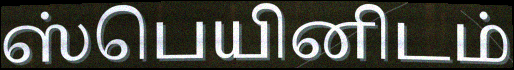
ஸ்பெயினிடம்